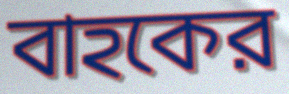
বাহকের